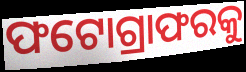
ଫଟୋଗ୍ରାଫରକୁ